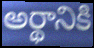
అర్థానికి